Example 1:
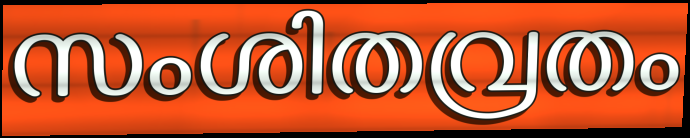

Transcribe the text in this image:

സംശിതവ്രതം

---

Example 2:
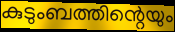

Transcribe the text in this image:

കുടുംബത്തിന്റെയും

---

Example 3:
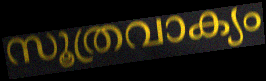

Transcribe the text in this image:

സൂത്രവാക്യം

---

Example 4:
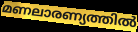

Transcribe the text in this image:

മണലാരണ്യത്തിൽ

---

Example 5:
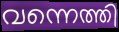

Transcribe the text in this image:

വന്നെത്തി